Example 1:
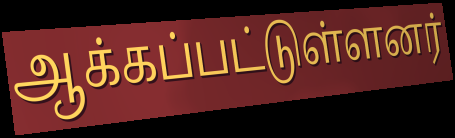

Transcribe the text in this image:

ஆக்கப்பட்டுள்ளனர்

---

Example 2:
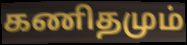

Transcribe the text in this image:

கணிதமும்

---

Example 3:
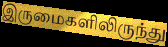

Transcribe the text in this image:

இருமைகளிலிருந்து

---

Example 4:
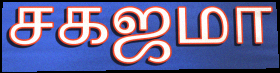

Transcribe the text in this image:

சகஜமா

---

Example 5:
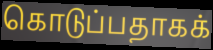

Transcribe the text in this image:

கொடுப்பதாகக்